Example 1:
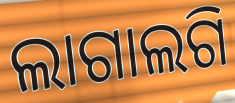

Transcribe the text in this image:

ଲାଗାଲଗି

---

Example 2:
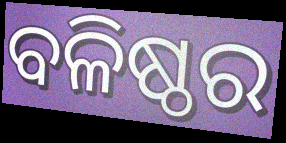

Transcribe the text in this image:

ବଳିଷ୍ଠର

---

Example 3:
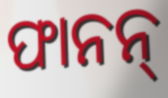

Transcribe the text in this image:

ଫାନନ୍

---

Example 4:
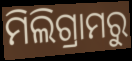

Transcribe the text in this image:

ମିଲିଗ୍ରାମରୁ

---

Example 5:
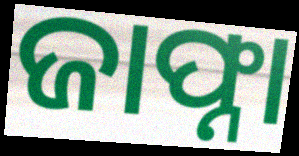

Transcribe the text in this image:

ଜାଫ୍ନା